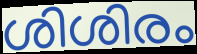
ശിശിരം